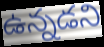
ఉన్నడని